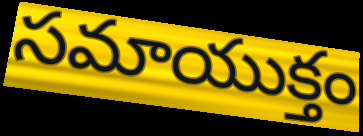
సమాయుక్తం